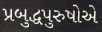
પ્રબુદ્ધપુરુષોએ